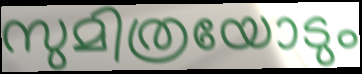
സുമിത്രയോടും